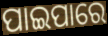
ପାଇପାରେ